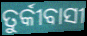
ତୁର୍କୀବାସୀ